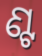
ଣ୍ଟ